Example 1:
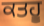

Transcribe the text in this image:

ਕਤਹੂ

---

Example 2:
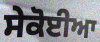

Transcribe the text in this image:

ਸੇਕੋਈਆ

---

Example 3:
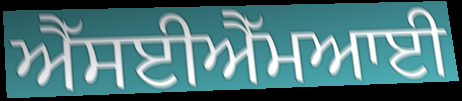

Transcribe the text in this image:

ਐੱਸਈਐੱਮਆਈ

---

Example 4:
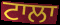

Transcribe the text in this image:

ਟਾਲਾ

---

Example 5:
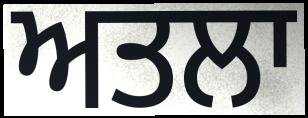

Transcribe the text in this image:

ਅਤਲਾ